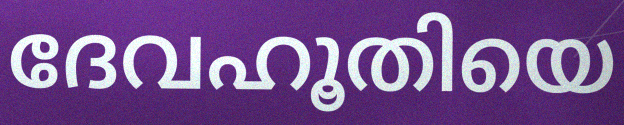
ദേവഹൂതിയെ